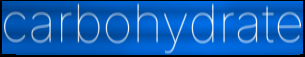
carbohydrate